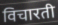
विचारती